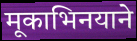
मूकाभिनयाने